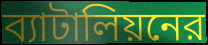
ব্যাটালিয়নের